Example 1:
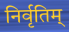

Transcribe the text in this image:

निर्वृतिम्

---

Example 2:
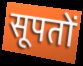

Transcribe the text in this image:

सूपतों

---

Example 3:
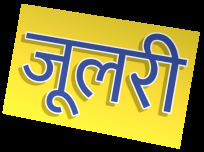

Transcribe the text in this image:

जूलरी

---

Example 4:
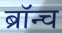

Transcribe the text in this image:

ब्रॉन्च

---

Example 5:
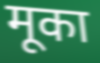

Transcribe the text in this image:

मूका